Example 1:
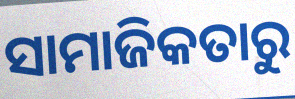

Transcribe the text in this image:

ସାମାଜିକତାରୁ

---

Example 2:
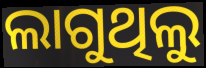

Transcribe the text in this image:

ଲାଗୁଥିଲୁ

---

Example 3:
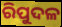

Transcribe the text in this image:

ରିପୁଦଳ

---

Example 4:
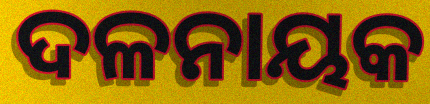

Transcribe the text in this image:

ଦଳନାୟକ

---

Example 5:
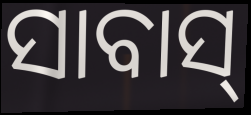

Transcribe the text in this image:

ସାବାସ୍